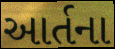
આર્તના